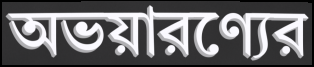
অভয়ারণ্যের